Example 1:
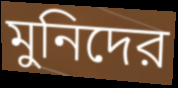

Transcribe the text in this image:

মুনিদের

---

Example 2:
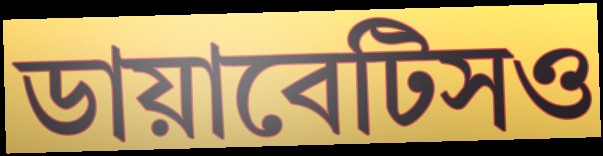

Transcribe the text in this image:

ডায়াবেটিসও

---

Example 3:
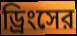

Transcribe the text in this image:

ড্রিংসের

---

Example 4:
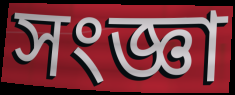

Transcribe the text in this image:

সংজ্ঞা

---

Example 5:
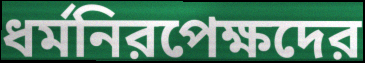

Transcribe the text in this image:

ধর্মনিরপেক্ষদের